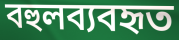
বহুলব্যবহৃত